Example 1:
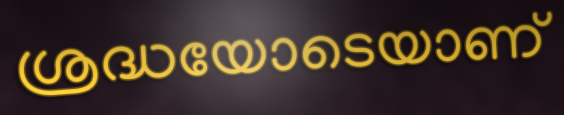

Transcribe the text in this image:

ശ്രദ്ധയോടെയാണ്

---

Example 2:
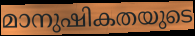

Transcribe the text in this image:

മാനുഷികതയുടെ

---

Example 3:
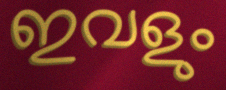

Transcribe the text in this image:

ഇവളും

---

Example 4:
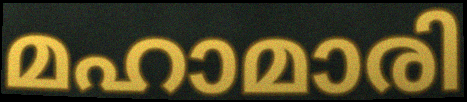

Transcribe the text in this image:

മഹാമാരി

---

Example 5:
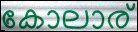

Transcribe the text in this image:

കോലാര്